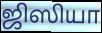
ஜிஸியா